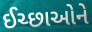
ઈચ્છાઓને